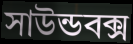
সাউন্ডবক্স